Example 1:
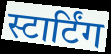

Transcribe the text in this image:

स्टार्टिंग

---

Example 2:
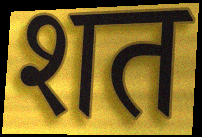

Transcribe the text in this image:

शत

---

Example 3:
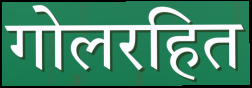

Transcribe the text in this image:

गोलरहित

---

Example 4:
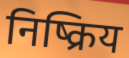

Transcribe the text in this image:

निष्क्रिय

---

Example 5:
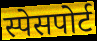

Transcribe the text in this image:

स्पेसपोर्ट